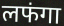
लफंगा